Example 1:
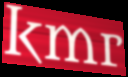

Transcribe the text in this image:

kmr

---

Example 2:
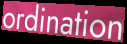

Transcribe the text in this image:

ordination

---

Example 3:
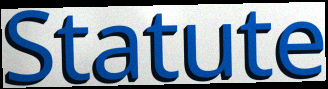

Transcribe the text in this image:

Statute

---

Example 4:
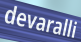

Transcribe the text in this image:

devaralli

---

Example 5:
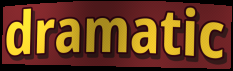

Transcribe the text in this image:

dramatic